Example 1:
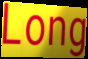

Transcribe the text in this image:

Long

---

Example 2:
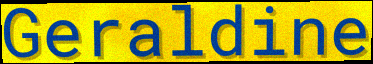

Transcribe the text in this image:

Geraldine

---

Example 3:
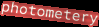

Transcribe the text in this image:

photometery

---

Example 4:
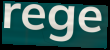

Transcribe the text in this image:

rege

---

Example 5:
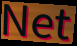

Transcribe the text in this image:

Net